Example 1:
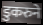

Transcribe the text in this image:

डुकरुने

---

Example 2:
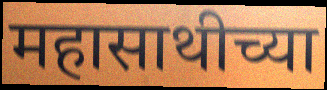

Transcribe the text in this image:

महासाथीच्या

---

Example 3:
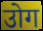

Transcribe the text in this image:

उोग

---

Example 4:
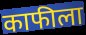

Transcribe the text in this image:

काफीला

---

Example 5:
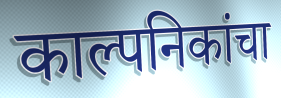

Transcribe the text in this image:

काल्पनिकांचा